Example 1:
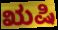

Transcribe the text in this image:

ಋಷಿ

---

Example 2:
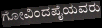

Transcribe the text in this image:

ಗೋವಿಂದಪೈಯವರು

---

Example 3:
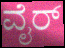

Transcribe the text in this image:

ವೈರ್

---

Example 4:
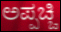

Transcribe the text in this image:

ಅಪ್ಪಚ್ಚಿ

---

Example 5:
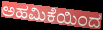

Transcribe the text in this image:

ಅಹಮಿಕೆಯಿಂದ